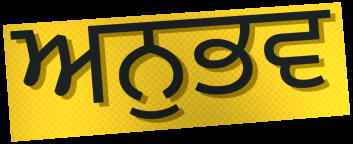
ਅਨੁਭਵ